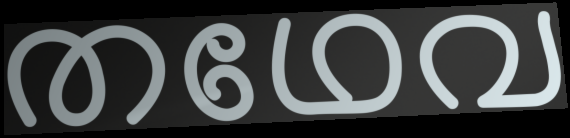
തഥേവ